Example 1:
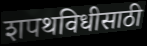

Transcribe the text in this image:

शपथविधीसाठी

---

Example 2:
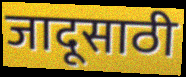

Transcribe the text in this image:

जादूसाठी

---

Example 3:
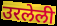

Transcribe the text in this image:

उरलेली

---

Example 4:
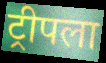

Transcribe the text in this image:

ट्रीपला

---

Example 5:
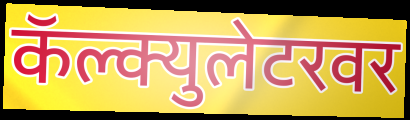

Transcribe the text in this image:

कॅल्क्युलेटरवर